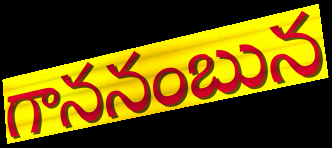
గాననంబున